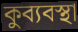
কুব্যবস্থা